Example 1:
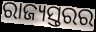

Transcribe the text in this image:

ରାଜ୍ୟସ୍ତରର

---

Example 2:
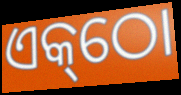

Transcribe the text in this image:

ଏକ୍‌ଠୋ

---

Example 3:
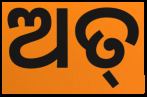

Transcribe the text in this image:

ଅତ୍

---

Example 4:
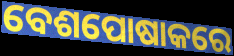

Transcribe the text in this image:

ବେଶପୋଷାକରେ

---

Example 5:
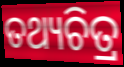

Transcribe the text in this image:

ତଥ୍ୟଚିତ୍ର